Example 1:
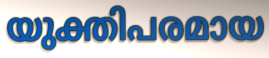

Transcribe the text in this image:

യുക്തിപരമായ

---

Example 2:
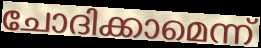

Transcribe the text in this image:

ചോദിക്കാമെന്ന്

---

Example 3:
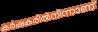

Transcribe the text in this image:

കർഷകരിൽനിന്നാണ്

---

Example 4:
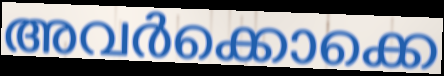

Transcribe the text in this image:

അവർക്കൊക്കെ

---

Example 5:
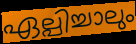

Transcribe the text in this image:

ഏല്പിച്ചാലും